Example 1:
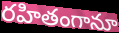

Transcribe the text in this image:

రహితంగానూ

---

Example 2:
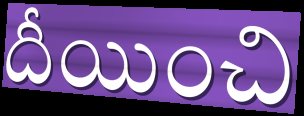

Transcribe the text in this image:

దీయించి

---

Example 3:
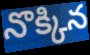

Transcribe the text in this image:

నొక్కిన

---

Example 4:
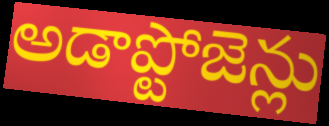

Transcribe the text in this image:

అడాప్టోజెన్లు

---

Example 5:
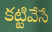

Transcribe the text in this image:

కట్టివేసే